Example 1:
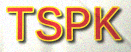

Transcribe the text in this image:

TSPK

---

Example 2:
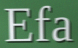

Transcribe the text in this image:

Efa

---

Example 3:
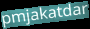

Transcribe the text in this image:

pmjakatdar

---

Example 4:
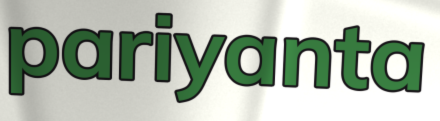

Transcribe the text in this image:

pariyanta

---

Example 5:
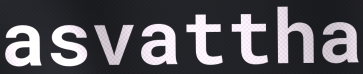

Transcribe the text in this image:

asvattha